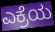
ಎಕ್ರೆಯ